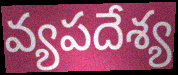
వ్యపదేశ్య